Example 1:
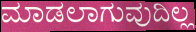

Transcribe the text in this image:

ಮಾಡಲಾಗುವುದಿಲ್ಲ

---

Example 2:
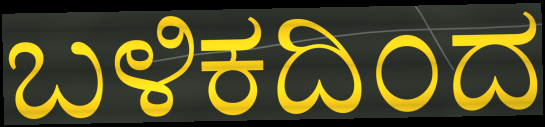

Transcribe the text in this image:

ಬಳಿಕದಿಂದ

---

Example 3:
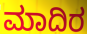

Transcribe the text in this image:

ಮಾದಿರ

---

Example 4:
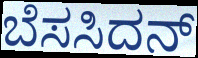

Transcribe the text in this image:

ಬೆಸಸಿದನ್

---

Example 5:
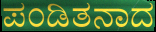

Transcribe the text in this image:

ಪಂಡಿತನಾದ